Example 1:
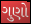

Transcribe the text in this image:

ગુણો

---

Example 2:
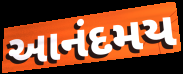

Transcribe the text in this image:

આનંદમય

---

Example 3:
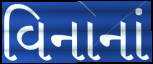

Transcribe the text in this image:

વિનાનાં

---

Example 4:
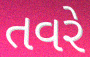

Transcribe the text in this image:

તવરે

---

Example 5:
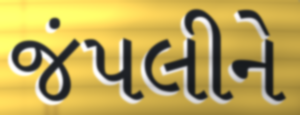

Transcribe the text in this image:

જંપલીને